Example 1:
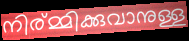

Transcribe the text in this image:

നിര്മ്മിക്കുവാനുള്ള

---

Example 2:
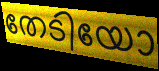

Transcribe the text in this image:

തേടിയോ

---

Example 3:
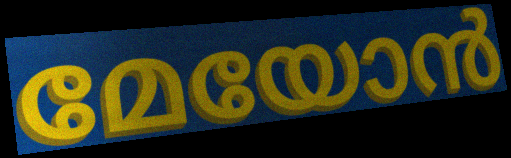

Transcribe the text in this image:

മേയോൻ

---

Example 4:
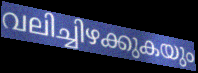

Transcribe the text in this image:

വലിച്ചിഴക്കുകയും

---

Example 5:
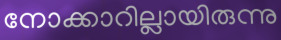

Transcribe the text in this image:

നോക്കാറില്ലായിരുന്നു